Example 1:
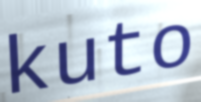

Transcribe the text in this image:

kuto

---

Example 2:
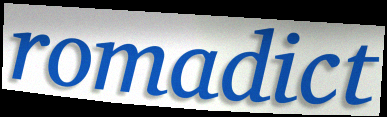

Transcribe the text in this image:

romadict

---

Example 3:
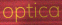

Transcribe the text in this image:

optica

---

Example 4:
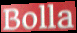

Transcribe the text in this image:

Bolla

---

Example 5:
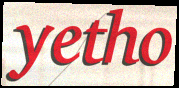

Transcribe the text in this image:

yetho